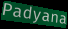
Padyana